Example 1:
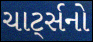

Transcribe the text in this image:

ચાર્ટ્સનો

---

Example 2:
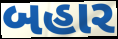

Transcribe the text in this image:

બહાર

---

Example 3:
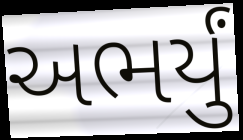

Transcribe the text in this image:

અભર્યું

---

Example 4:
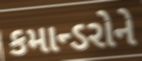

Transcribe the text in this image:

કમાન્ડરોને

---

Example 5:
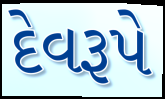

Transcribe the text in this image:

દેવરૂપે